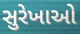
સુરેખાઓ